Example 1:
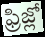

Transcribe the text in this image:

ఫ్రిజ్లో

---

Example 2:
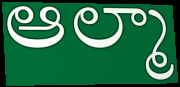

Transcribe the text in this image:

ఆల్మా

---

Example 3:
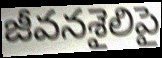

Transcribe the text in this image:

జీవనశైలిపై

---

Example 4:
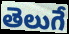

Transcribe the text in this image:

తెలుగే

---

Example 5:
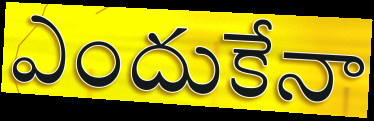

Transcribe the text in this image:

ఎందుకేనా